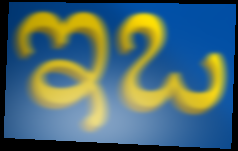
ಇಒ